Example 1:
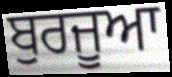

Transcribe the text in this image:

ਬੁਰਜੂਆ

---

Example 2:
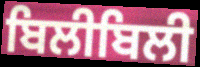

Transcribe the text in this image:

ਬਿਲੀਬਿਲੀ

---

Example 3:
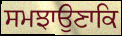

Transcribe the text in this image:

ਸਮਝਾਉਣਾਕਿ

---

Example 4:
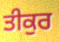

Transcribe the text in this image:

ਤੀਕੁਰ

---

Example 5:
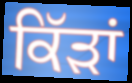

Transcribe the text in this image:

ਕਿੱੜਾਂ